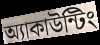
অ্যাকাউন্টিং